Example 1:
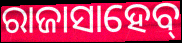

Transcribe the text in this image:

ରାଜାସାହେବ୍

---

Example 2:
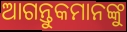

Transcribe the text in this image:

ଆଗନ୍ତୁକମାନଙ୍କୁ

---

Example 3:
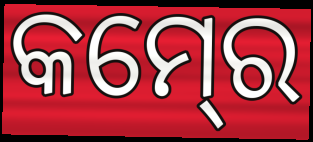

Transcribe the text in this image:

କମ୍‍ରେ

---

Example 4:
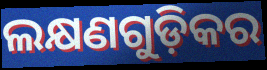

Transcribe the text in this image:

ଲକ୍ଷଣଗୁଡ଼ିକର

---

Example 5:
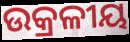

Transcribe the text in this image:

ଉକ୍ରଳୀୟ